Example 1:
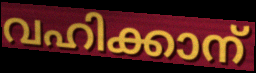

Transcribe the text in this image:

വഹിക്കാന്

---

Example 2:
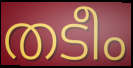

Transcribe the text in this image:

തടീം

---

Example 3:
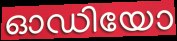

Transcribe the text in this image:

ഓഡിയോ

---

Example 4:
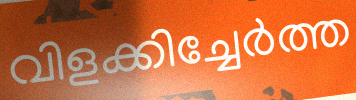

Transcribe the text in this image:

വിളക്കിച്ചേർത്ത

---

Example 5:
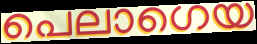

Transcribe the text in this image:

പെലാഗെയ